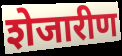
शेजारीण